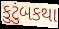
કુટુંબકથા